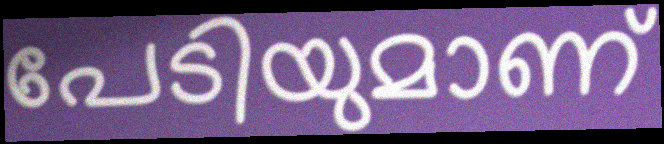
പേടിയുമാണ്